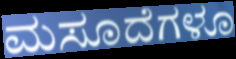
ಮಸೂದೆಗಳೂ